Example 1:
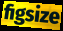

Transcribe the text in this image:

figsize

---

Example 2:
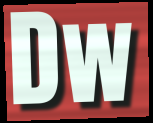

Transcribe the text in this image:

Dw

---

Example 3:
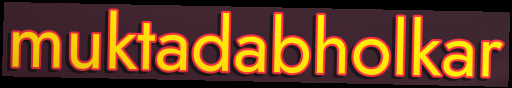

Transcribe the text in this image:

muktadabholkar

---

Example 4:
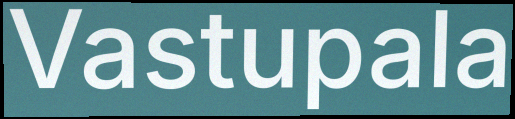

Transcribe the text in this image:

Vastupala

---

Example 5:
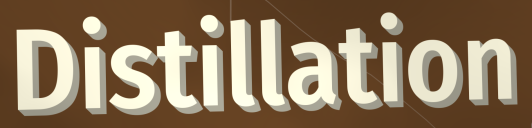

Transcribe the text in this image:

Distillation